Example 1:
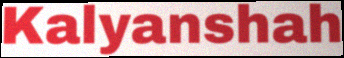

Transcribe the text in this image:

Kalyanshah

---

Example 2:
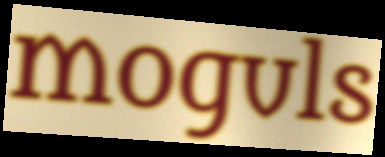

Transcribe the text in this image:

moguls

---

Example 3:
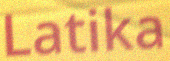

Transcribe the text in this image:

Latika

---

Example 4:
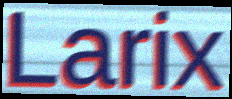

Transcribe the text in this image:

Larix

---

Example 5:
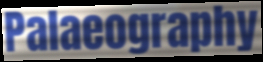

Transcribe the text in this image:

Palaeography